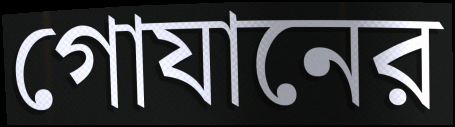
গোযানের